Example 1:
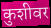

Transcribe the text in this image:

कुशीवर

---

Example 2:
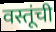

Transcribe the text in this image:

वस्तूंची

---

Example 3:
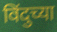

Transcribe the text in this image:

विंदुच्या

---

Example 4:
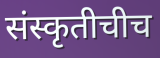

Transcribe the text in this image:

संस्कृतीचीच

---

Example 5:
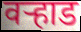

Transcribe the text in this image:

वऱ्हाड